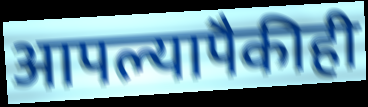
आपल्यापैकीही